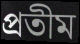
প্রতীম